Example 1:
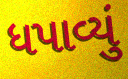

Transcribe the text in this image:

ધપાવ્યું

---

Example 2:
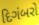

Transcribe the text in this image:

દિગંબરો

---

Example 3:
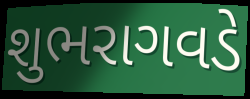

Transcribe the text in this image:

શુભરાગવડે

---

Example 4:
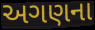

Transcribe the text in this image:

અગણના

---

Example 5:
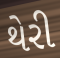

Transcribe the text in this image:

થેરી